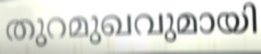
തുറമുഖവുമായി